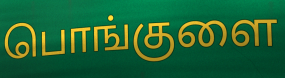
பொங்குளை